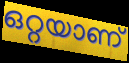
ഒറ്റയാണ്